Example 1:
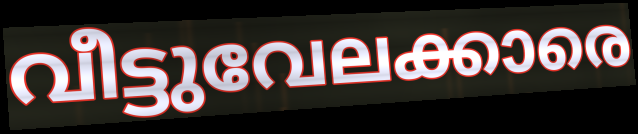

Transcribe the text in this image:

വീട്ടുവേലക്കാരെ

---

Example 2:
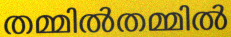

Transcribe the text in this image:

തമ്മിൽതമ്മിൽ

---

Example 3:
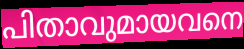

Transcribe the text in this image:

പിതാവുമായവനെ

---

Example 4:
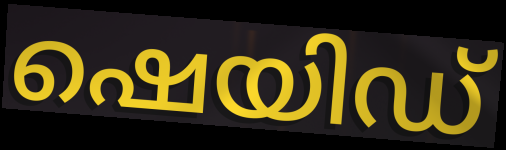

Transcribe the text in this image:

ഷെയിഡ്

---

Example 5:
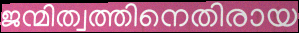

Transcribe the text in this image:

ജന്മിത്വത്തിനെതിരായ